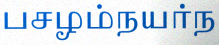
பசழம்நயர்ந